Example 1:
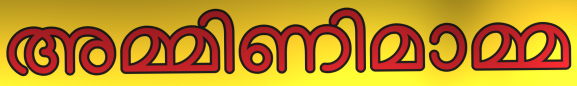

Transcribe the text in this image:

അമ്മിണിമാമ്മ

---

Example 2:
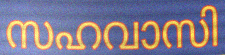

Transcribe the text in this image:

സഹവാസി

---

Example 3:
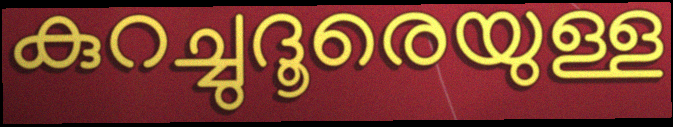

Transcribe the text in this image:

കുറച്ചുദൂരെയുള്ള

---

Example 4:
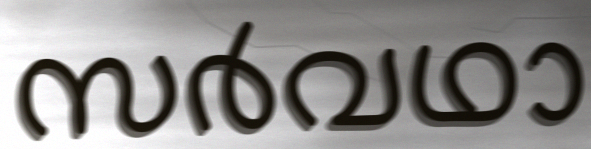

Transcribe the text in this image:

സർവഥാ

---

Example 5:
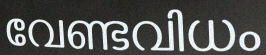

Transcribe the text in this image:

വേണ്ടവിധം